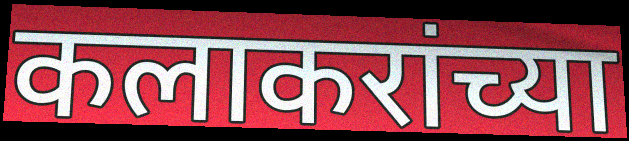
कलाकरांच्या